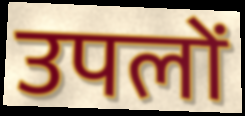
उपलों